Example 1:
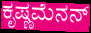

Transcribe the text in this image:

ಕೃಷ್ಣಮೆನನ್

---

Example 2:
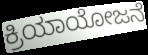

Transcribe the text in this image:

ಕ್ರಿಯಾಯೋಜನೆ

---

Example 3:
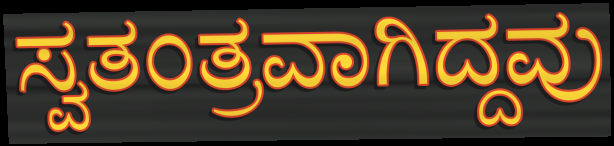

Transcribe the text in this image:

ಸ್ವತಂತ್ರವಾಗಿದ್ದವು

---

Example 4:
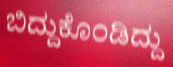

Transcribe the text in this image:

ಬಿದ್ದುಕೊಂಡಿದ್ದು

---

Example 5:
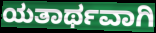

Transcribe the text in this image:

ಯತಾರ್ಥವಾಗಿ